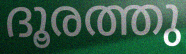
ദൂരത്തു